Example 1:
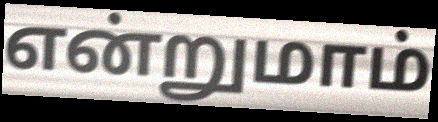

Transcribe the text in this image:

என்றுமாம்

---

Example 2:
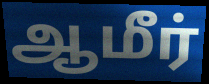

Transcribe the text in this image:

ஆமீர்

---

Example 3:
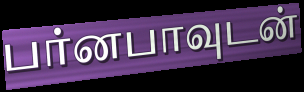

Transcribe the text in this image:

பர்னபாவுடன்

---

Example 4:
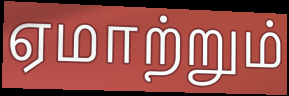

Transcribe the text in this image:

ஏமாற்றும்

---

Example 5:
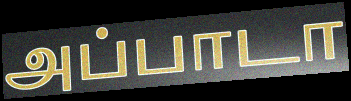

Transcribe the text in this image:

அப்பாடா